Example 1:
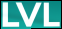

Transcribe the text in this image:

LVL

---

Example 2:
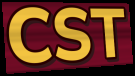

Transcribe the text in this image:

CST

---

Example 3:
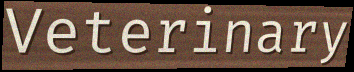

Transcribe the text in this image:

Veterinary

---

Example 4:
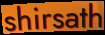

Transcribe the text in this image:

shirsath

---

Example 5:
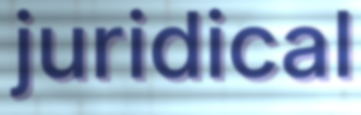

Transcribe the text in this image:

juridical